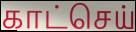
காட்செய்